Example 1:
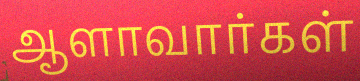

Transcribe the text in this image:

ஆளாவார்கள்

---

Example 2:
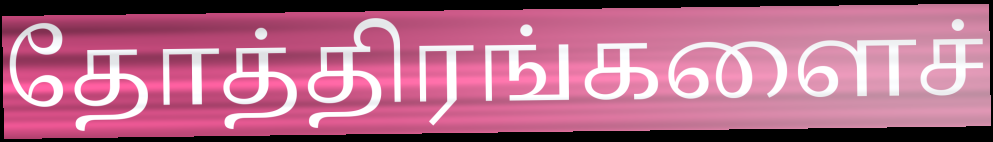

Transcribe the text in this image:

தோத்திரங்களைச்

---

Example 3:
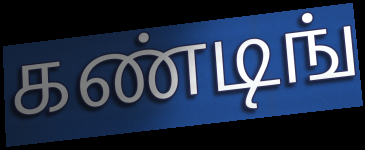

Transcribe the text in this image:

கண்டிங்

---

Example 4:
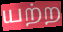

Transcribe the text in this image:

யற்ற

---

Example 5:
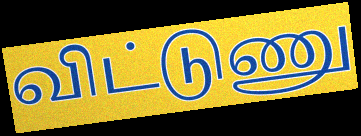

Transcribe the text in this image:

விட்டுணு